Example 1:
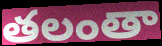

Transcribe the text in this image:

తలంతా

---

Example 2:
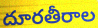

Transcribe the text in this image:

దూరతీరాల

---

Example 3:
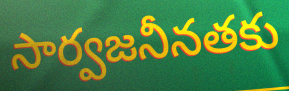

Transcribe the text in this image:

సార్వజనీనతకు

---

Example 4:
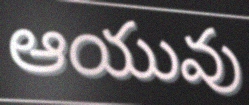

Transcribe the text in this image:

ఆయువు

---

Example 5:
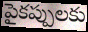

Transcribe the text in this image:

పైకప్పులకు